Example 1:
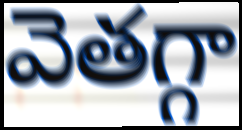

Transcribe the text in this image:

వెతగ్గా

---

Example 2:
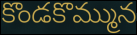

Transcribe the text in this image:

కొండకొమ్మున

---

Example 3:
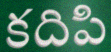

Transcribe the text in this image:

కదిపి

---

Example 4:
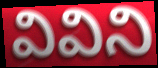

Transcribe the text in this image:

వివిని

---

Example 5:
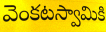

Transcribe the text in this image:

వెంకటస్వామికి